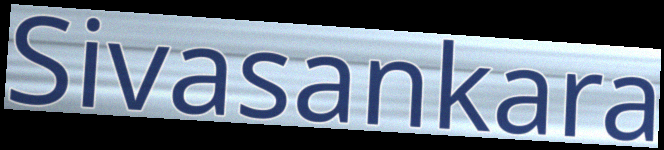
Sivasankara